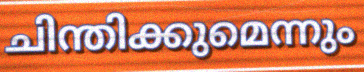
ചിന്തിക്കുമെന്നും